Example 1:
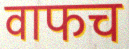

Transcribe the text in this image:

वाफच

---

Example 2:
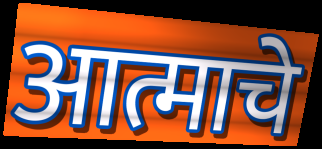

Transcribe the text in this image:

आत्माचे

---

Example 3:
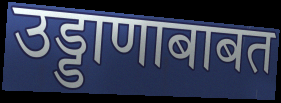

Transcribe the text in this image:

उड्डाणाबाबत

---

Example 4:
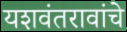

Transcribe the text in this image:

यशवंतरावांचे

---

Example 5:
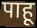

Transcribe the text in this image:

पाहू